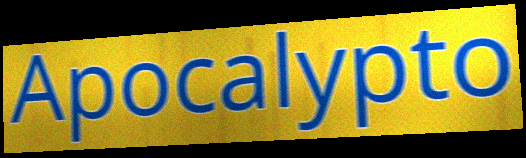
Apocalypto